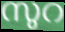
സുറ